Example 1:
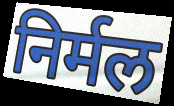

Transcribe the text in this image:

निर्मल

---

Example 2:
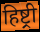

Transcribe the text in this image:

हिष्ट्री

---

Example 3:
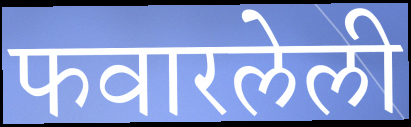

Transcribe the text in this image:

फवारलेली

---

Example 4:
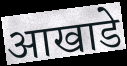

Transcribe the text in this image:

आखाडे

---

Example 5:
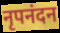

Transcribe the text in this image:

नृपनंदन